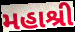
મહાશ્રી